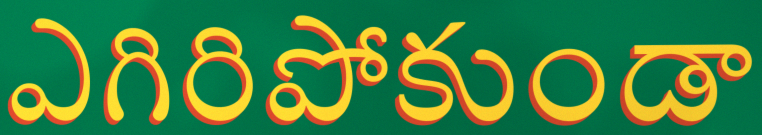
ఎగిరిపోకుండా